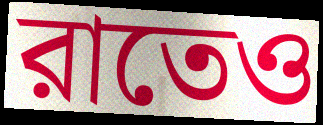
রাতেও